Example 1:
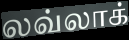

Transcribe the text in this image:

லவ்லாக்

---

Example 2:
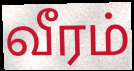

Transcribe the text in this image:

வீரம்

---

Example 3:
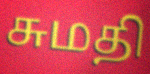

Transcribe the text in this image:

சுமதி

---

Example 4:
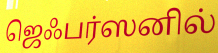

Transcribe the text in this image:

ஜெஃபர்ஸனில்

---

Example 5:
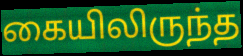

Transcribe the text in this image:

கையிலிருந்த